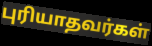
புரியாதவர்கள்